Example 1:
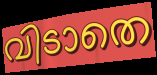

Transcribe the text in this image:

വിടാതെ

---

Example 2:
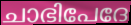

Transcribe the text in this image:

ചാഭിപേദേ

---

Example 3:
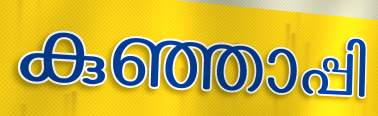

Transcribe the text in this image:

കുഞ്ഞാപ്പി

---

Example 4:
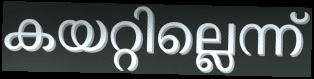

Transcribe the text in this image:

കയറ്റില്ലെന്ന്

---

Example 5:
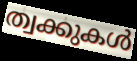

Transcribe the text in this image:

ത്വക്കുകൾ